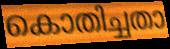
കൊതിച്ചതാ